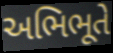
અભિભૂતે